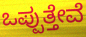
ಒಪ್ಪುತ್ತೇವೆ